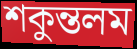
শকুন্তলম